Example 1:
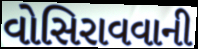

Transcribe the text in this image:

વોસિરાવવાની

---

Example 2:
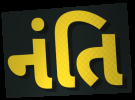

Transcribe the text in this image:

નંતિ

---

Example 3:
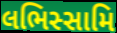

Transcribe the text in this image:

લભિસ્સામિ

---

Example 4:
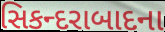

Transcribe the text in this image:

સિકન્દરાબાદના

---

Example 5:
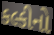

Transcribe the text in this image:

કલ્કીનો